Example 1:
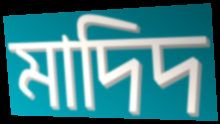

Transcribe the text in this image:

মাদিদ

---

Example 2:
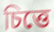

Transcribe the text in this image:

চিত্তে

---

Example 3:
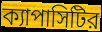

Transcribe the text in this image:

ক্যাপাসিটির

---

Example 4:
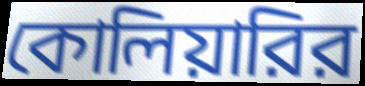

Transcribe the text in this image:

কোলিয়ারির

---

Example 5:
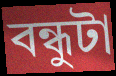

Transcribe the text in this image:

বন্ধুটা